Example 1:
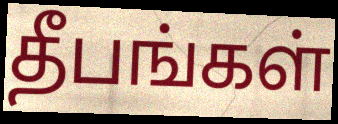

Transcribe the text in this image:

தீபங்கள்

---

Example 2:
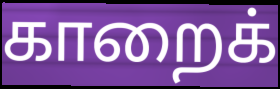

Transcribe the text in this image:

காறைக்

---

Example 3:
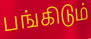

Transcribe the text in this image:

பங்கிடும்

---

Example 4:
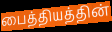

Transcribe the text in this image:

பைத்தியத்தின்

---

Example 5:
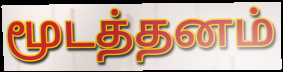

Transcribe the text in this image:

மூடத்தனம்